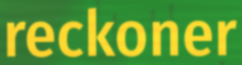
reckoner